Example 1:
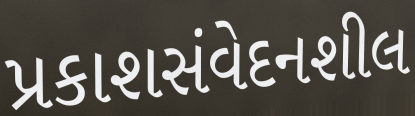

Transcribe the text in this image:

પ્રકાશસંવેદનશીલ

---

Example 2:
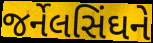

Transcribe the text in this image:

જર્નેલસિંઘને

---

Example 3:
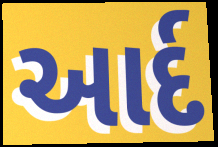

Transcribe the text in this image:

આર્દ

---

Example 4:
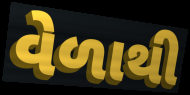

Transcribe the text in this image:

વેળાથી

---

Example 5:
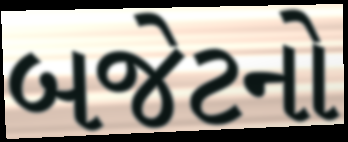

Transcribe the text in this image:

બજેટનો